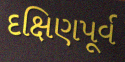
દક્ષિણપૂર્વ